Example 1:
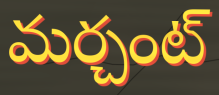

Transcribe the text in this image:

మర్చంట్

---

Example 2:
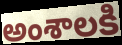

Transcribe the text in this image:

అంశాలకి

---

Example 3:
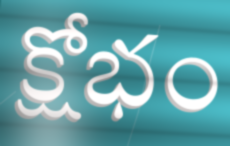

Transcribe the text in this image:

క్షోభం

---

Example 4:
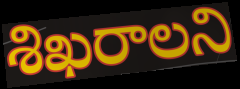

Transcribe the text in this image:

శిఖరాలని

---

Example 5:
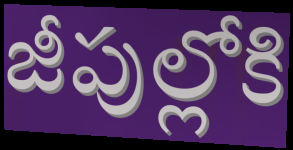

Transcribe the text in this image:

జీపుల్లోకి